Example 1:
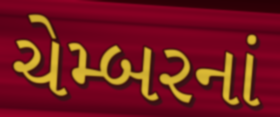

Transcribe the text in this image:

ચેમ્બરનાં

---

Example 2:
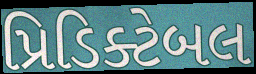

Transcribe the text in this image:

પ્રિડિક્ટેબલ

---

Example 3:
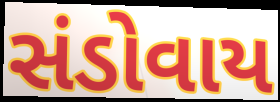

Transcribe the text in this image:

સંડોવાય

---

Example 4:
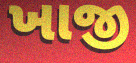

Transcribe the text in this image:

ખાજી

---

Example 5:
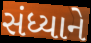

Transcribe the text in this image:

સંધ્યાને